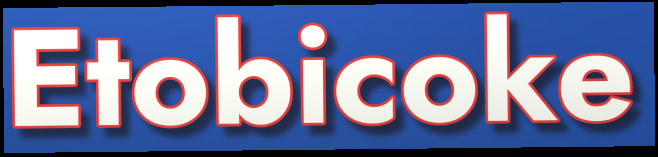
Etobicoke